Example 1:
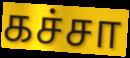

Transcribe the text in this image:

கச்சா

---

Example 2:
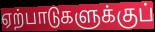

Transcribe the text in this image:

ஏற்பாடுகளுக்குப்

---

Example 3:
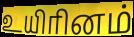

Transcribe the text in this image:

உயிரினம்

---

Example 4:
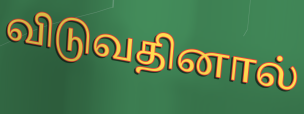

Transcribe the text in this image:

விடுவதினால்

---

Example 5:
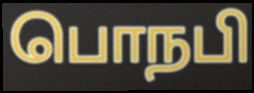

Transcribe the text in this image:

பொநபி